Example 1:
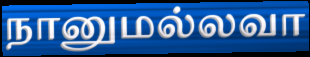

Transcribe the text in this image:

நானுமல்லவா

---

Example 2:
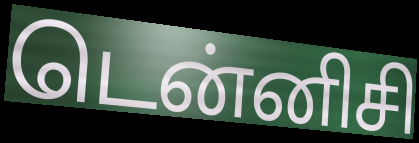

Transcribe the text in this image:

டென்னிசி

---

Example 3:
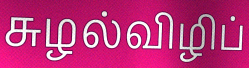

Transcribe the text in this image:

சுழல்விழிப்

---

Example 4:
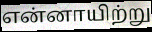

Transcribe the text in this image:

என்னாயிற்று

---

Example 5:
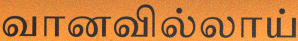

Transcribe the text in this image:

வானவில்லாய்